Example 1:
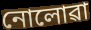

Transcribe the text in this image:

নোলোৱা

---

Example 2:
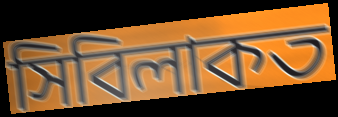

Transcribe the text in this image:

সিবিলাকত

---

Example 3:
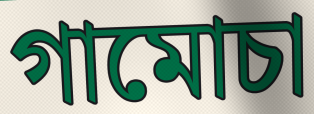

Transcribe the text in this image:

গামোচা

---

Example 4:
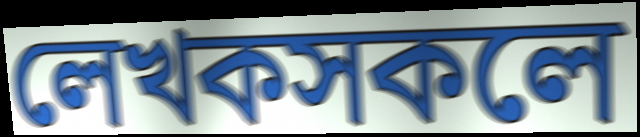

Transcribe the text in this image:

লেখকসকলে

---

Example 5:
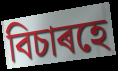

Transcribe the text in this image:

বিচাৰহে